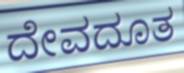
ದೇವದೂತ